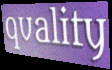
quality